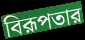
বিরূপতার